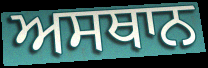
ਅਸਥਾਨ